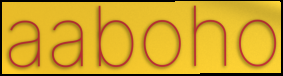
aaboho